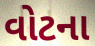
વોટના